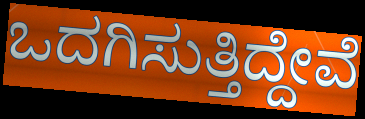
ಒದಗಿಸುತ್ತಿದ್ದೇವೆ